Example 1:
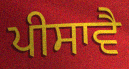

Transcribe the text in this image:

ਪੀਸਾਵੈ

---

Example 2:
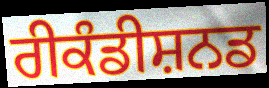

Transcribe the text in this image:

ਰੀਕੰਡੀਸ਼ਨਡ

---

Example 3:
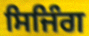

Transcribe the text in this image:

ਸਿਜਿੰਗ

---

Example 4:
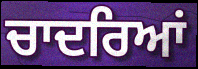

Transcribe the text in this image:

ਚਾਦਰਿਆਂ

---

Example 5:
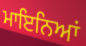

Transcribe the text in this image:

ਮਾਇਨਿਆਂ